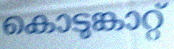
കൊടുങ്കാറ്റ്